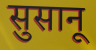
सुसानू